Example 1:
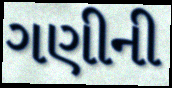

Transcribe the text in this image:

ગણીની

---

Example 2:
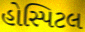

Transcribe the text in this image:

હોસ્પિટલ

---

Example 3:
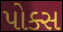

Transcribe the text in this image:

પોક્સ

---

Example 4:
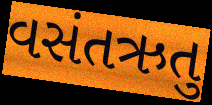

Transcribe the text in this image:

વસંતઋતુ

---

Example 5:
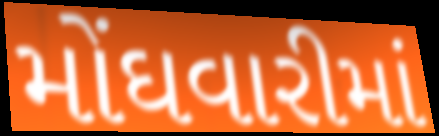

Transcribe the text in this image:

મોંઘવારીમાં